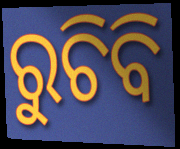
ରୁଚିବି